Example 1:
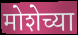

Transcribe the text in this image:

मोशेच्या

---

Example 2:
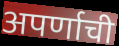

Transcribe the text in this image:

अपर्णाची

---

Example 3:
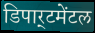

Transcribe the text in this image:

डिपार्टमेंटल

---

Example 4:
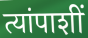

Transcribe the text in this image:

त्यांपाशीं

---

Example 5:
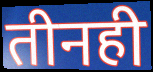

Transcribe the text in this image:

तीनही